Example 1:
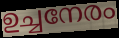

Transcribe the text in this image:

ഉച്ചനേരം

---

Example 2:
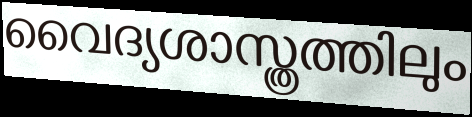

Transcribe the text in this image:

വൈദ്യശാസ്ത്രത്തിലും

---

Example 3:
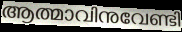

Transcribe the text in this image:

ആത്മാവിനുവേണ്ടി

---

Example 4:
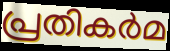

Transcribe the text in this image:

പ്രതികർമ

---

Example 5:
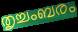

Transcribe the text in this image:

തൃച്ചംബരം